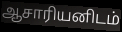
ஆசாரியனிடம்